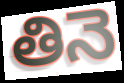
తినె